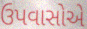
ઉપવાસોએ